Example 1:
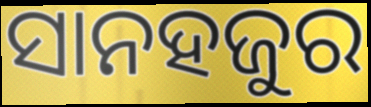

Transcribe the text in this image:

ସାନହଜୁର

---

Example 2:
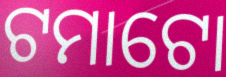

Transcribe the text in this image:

ଟମାଟୋ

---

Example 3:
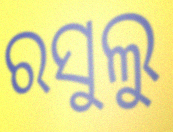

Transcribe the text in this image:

ରସୁଲୁ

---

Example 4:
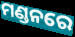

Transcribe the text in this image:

ମଣ୍ଡନରେ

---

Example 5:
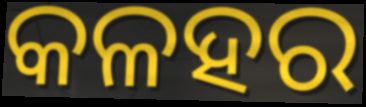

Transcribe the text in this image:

କଳହର